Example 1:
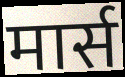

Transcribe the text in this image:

मार्स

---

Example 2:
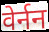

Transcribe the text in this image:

वेर्नन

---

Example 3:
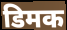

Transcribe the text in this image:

डिमक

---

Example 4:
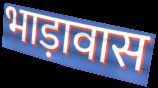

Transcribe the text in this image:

भाड़ावास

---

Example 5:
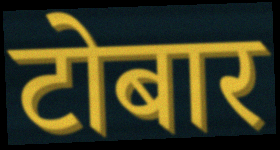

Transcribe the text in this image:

टोबार